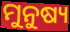
ମୁନୁଷ୍ୟ